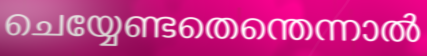
ചെയ്യേണ്ടതെന്തെന്നാൽ